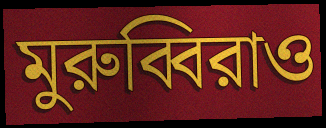
মুরুব্বিরাও